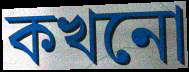
কখনো